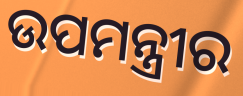
ଉପମନ୍ତ୍ରୀର